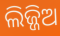
ଲିଜ୍ଜିଅ